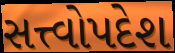
સત્ત્વોપદેશ